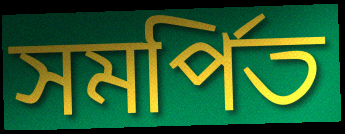
সমৰ্পিত